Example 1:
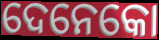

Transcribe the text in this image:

ଦେନେକୋ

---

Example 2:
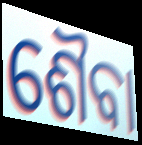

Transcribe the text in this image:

ଶୈବା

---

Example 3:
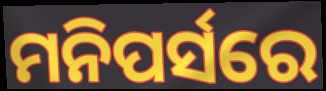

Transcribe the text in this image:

ମନିପର୍ସରେ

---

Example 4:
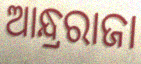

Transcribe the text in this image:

ଆନ୍ଧ୍ରରାଜା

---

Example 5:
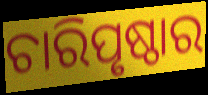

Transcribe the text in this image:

ଚାରିପୃଷ୍ଠାର